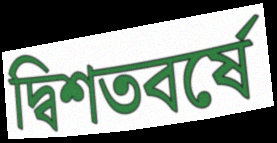
দ্বিশতবর্ষে